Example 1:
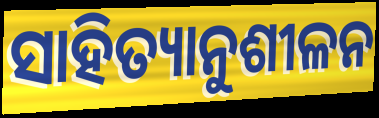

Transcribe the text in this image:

ସାହିତ୍ୟାନୁଶୀଳନ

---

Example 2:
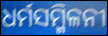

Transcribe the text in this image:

ଧର୍ମସମ୍ମିଳନୀ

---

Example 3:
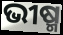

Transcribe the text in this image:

ଭୀଷ୍ମ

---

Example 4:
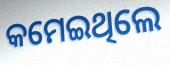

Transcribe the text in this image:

କମେଇଥିଲେ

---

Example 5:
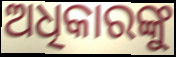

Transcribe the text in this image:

ଅଧିକାରଙ୍କୁ